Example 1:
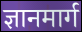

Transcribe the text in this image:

ज्ञानमार्ग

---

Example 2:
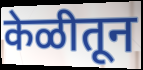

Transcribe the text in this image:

केळीतून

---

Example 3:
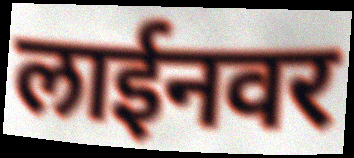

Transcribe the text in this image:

लाईनवर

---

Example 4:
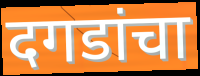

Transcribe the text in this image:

दगडांचा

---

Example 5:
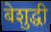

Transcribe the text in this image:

बेशुद्धी